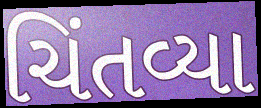
ચિંતવ્યા